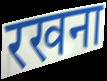
रखना